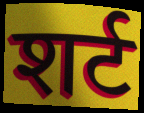
शर्ट